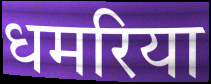
धमरिया